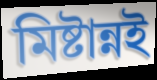
মিষ্টান্নই